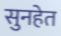
सुनहेत